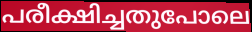
പരീക്ഷിച്ചതുപോലെ